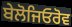
ਬੇਲੋਜਿਓਰੋਵ